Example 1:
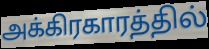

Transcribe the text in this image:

அக்கிரகாரத்தில்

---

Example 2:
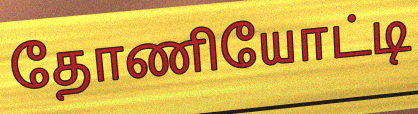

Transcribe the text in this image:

தோணியோட்டி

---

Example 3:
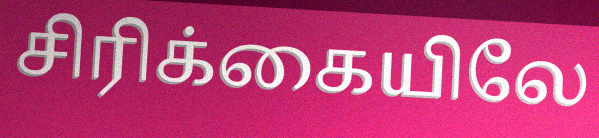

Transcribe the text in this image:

சிரிக்கையிலே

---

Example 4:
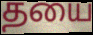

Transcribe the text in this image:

தயை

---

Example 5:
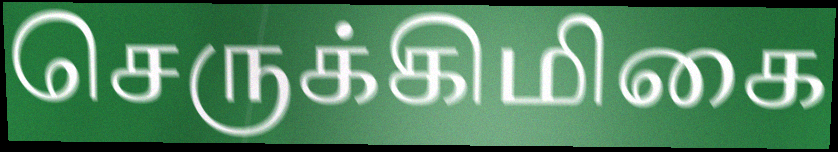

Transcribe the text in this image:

செருக்கிமிகை